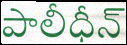
పాలీధీన్